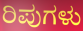
ರಿಪುಗಳು